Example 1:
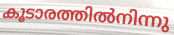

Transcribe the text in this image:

കൂടാരത്തിൽനിന്നു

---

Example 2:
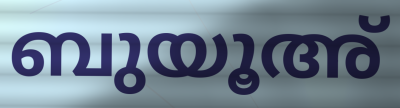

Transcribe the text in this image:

ബുയൂഅ്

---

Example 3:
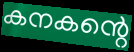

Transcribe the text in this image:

കനകന്റെ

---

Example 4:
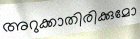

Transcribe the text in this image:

അറുക്കാതിരിക്കുമോ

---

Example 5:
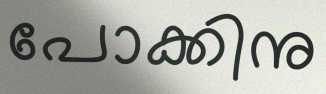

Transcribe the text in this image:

പോക്കിനു